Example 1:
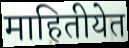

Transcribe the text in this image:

माहितीयेत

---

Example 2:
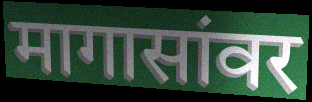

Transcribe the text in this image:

मागासांवर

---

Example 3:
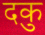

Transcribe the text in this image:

दकु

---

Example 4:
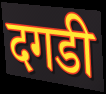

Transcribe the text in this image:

दगडी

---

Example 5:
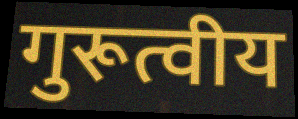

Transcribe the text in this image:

गुरूत्वीय